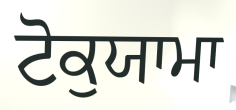
ਟੋਕੁਯਾਮਾ